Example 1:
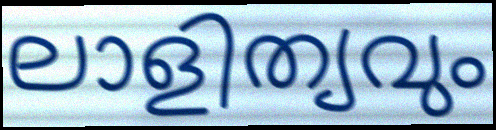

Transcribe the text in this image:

ലാളിത്യവും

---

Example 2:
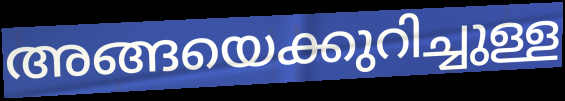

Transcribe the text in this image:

അങ്ങയെക്കുറിച്ചുള്ള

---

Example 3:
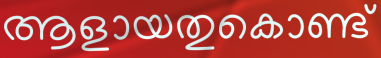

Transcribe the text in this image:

ആളായതുകൊണ്ട്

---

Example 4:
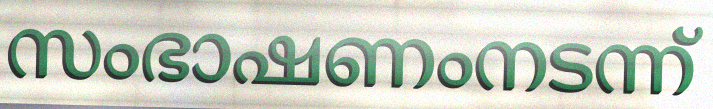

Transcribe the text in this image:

സംഭാഷണംനടന്ന്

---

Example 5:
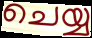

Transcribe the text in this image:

ചെയ്യ